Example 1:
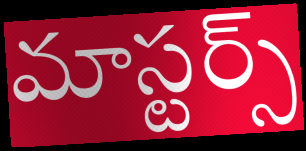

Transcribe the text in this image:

మాస్టర్స్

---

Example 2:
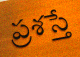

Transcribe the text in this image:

ప్రశస్తే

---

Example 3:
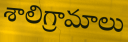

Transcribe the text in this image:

శాలిగ్రామాలు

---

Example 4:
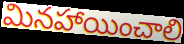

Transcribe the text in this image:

మినహాయించాలి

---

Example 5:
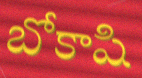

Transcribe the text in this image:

బోకాషి